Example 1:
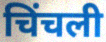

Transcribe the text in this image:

चिंचली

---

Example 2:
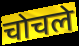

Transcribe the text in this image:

चोचले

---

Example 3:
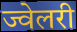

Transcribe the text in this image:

ज्वेलरी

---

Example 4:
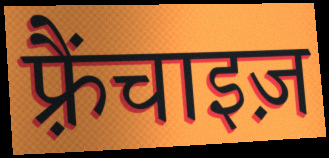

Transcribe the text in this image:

फ़्रैंचाइज़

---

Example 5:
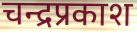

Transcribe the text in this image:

चन्द्रप्रकाश